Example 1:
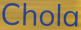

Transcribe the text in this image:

Chola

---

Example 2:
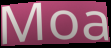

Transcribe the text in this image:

Moa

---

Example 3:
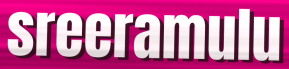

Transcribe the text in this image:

sreeramulu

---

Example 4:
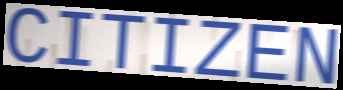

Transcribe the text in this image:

CITIZEN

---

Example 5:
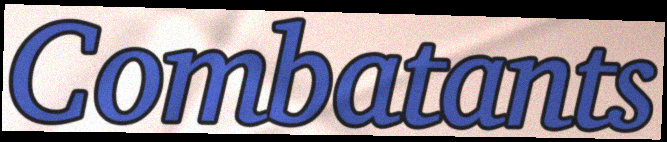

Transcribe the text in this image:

Combatants